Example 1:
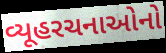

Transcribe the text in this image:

વ્યૂહરચનાઓનો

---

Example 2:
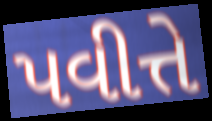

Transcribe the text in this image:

પવીત્તે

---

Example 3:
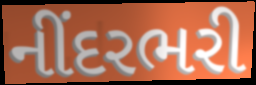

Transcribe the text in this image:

નીંદરભરી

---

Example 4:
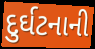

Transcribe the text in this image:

દુર્ઘટનાની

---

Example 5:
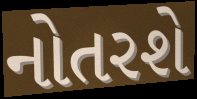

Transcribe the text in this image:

નોતરશે